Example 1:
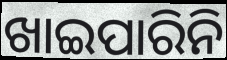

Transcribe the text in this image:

ଖାଇପାରିନି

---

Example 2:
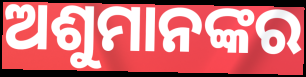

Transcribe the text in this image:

ଅଶୁମାନଙ୍କର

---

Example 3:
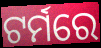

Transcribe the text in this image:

ଟର୍ମରେ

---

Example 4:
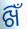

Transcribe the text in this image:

ଖିଁ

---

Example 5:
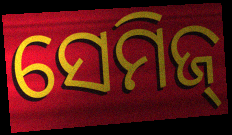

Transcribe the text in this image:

ସେମିଜ୍